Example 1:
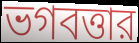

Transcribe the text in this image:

ভগবত্তার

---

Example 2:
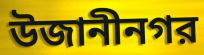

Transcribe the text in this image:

উজানীনগর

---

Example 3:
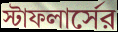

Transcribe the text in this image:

স্টাফলার্সের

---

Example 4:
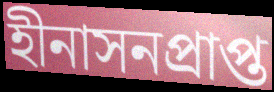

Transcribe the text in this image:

হীনাসনপ্রাপ্ত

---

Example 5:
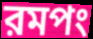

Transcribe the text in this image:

রমপং